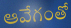
ఆవేగంతో